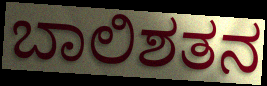
ಬಾಲಿಶತನ